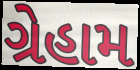
ગ્રેહામ